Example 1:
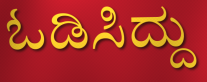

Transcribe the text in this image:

ಓಡಿಸಿದ್ದು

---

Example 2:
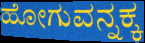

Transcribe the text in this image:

ಹೋಗುವನ್ನಕ್ಕ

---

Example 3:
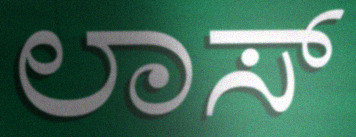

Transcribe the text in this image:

ಲಾಸ್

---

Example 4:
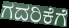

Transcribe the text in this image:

ಗದರಿಕೆಗೆ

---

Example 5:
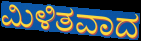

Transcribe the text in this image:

ಮಿಳಿತವಾದ